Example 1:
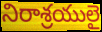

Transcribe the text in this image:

నిరాశ్రయులై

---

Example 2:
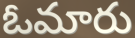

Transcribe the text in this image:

ఓమారు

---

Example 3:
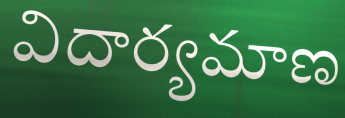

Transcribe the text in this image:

విదార్యమాణ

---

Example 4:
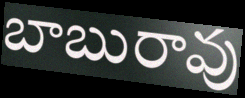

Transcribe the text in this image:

బాబురావు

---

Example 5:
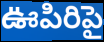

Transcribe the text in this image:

ఊపిరిపై